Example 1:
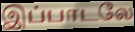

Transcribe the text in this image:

இப்பாடலே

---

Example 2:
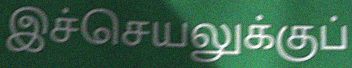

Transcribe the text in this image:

இச்செயலுக்குப்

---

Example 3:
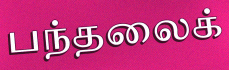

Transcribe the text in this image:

பந்தலைக்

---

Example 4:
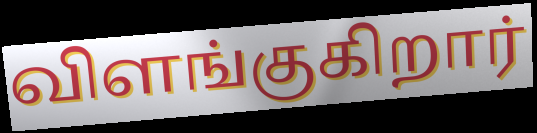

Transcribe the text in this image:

விளங்குகிறார்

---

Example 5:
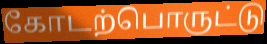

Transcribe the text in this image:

கோடற்பொருட்டு